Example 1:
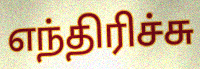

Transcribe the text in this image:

எந்திரிச்சு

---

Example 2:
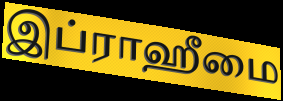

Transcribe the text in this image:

இப்ராஹீமை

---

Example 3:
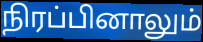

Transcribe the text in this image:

நிரப்பினாலும்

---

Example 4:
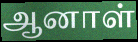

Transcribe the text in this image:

ஆனாள்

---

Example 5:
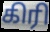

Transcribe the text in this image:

கிரி